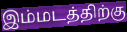
இம்மடத்திற்கு